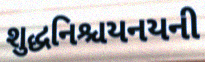
શુદ્ધનિશ્ચયનયની